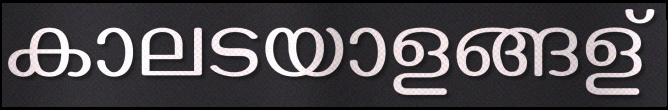
കാലടയാളങ്ങള്